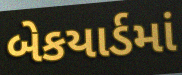
બેકયાર્ડમાં